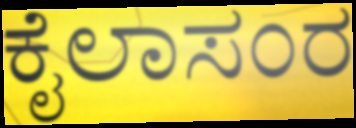
ಕೈಲಾಸಂರ